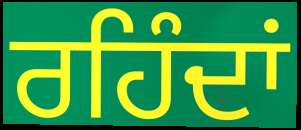
ਰਹਿੰਦਾਂ